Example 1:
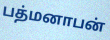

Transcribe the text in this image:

பத்மனாபன்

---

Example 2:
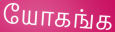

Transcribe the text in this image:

யோகங்க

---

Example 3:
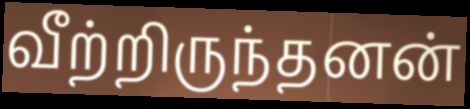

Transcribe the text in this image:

வீற்றிருந்தனன்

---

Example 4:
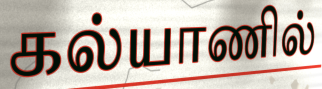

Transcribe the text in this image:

கல்யாணில்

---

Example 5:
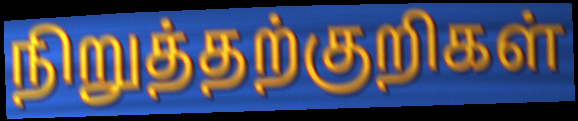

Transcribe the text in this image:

நிறுத்தற்குறிகள்